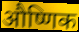
औष्णिक